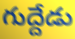
గుద్దేడు